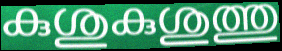
കുശുകുശുത്തു